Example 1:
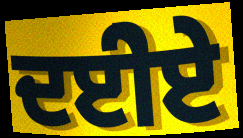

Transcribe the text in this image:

ਦਈੇਏ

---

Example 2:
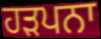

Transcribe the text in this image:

ਹੜਪਨਾ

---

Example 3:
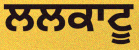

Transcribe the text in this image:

ਲਲਕਾਟੂ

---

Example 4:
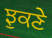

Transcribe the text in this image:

ਝੁਕਣੇ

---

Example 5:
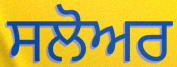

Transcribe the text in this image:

ਸਲੋਅਰ